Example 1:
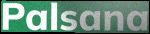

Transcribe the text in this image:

Palsana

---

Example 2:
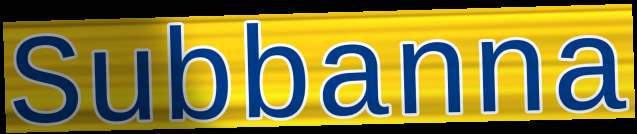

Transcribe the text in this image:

Subbanna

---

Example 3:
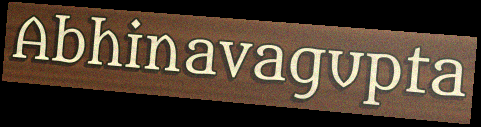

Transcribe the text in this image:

Abhinavagupta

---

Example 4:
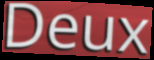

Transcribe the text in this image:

Deux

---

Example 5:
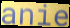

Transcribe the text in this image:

anie